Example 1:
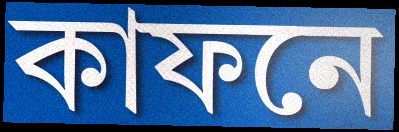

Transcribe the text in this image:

কাফনে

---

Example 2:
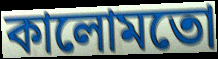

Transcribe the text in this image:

কালোমতো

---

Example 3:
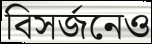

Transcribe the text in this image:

বিসর্জনেও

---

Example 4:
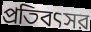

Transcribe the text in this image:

প্রতিবৎসর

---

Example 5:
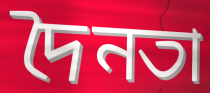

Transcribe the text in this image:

দৈনতা